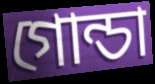
গোন্ডা